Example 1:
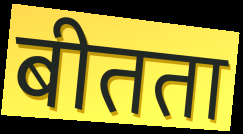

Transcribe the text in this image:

बीतता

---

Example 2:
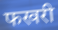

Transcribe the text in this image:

फखरी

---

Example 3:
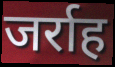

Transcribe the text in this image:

जर्राह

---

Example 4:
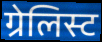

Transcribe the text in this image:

ग्रेलिस्ट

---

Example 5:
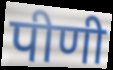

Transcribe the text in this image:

पीणी